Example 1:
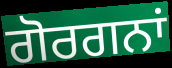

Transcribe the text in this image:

ਗੋਰਗਨਾਂ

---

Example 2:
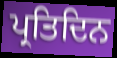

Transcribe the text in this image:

ਪ੍ਰਤਿਦਿਨ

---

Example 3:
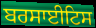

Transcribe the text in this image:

ਬਰਸਾਈਟਿਸ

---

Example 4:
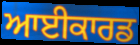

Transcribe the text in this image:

ਆਈਕਾਰਡ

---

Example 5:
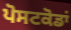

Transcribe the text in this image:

ਪੋਸਟਕੋਡਾਂ